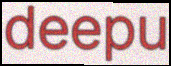
deepu